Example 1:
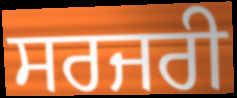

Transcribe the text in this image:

ਸਰਜਰੀ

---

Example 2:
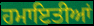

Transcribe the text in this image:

ਹਮਾਇਤੀਆਂ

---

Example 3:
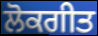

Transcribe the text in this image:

ਲੋਕਗੀਤ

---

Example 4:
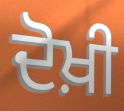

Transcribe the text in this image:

ਦੋਖ਼ੀ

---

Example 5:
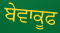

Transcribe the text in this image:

ਬੇਵਾਕੂਫ